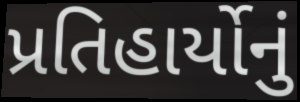
પ્રતિહાર્યોનું